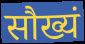
सौख्यं